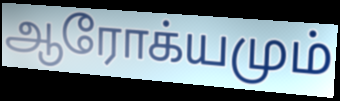
ஆரோக்யமும்